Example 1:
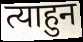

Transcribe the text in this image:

त्याहुन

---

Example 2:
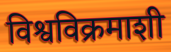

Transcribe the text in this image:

विश्वविक्रमाशी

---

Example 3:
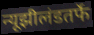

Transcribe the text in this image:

न्यूझीलंडतर्फे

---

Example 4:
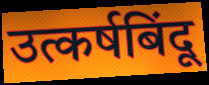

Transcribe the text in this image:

उत्कर्षबिंदू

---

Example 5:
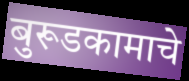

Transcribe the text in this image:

बुरूडकामाचे